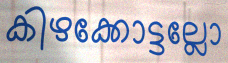
കിഴക്കോട്ടല്ലോ